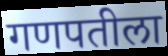
गणपतीला